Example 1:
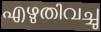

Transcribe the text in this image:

എഴുതിവച്ചു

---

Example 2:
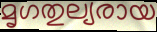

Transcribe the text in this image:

മൃഗതുല്യരായ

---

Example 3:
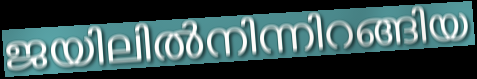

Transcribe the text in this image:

ജയിലിൽനിന്നിറങ്ങിയ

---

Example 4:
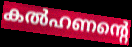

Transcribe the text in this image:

കൽഹണന്റെ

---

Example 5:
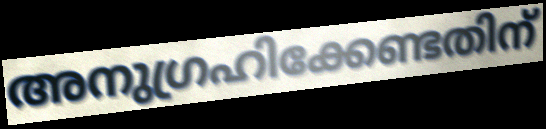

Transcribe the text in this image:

അനുഗ്രഹിക്കേണ്ടതിന്